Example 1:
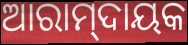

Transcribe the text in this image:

ଆରାମ୍‌ଦାୟକ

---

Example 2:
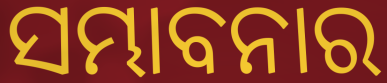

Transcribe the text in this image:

ସମ୍ଭାବନାର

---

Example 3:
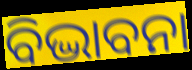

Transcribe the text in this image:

ବିଦ୍ଭାବନା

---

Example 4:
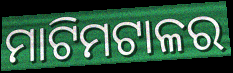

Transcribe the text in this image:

ମାଟିମଟାଳର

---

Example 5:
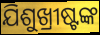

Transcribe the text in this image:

ଯିଶୁଖ୍ରୀଷ୍ଟଙ୍କ